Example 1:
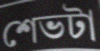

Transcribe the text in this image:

শেভটা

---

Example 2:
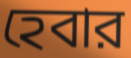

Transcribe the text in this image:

হেবার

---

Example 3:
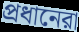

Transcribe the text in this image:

প্রধানেরা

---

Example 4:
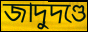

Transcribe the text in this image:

জাদুদণ্ডে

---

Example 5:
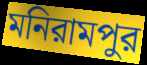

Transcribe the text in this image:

মনিরামপুর